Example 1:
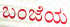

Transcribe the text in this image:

ಬಂಜೆಯ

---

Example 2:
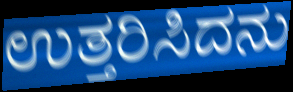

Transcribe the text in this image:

ಉತ್ತರಿಸಿದನು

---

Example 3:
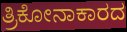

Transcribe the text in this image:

ತ್ರಿಕೋನಾಕಾರದ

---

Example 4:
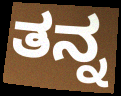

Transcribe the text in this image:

ತನ್ನ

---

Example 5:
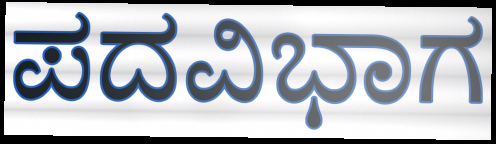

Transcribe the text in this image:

ಪದವಿಭಾಗ